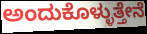
ಅಂದುಕೊಳ್ಳುತ್ತೇನೆ